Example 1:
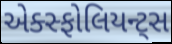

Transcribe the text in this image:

એક્સ્ફોલિયન્ટ્સ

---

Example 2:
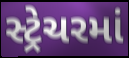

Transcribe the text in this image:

સ્ટ્રેચરમાં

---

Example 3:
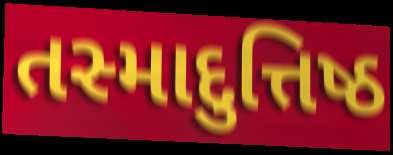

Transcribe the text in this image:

તસ્માદુત્તિષ્ઠ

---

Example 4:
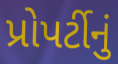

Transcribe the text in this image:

પ્રોપર્ટીનું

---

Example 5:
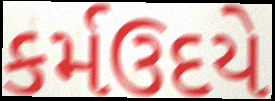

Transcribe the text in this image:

કર્મઉદયે